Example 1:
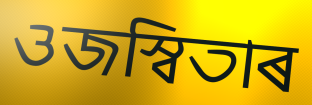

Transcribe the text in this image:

ওজস্বিতাৰ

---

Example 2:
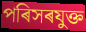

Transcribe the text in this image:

পৰিসৰযুক্ত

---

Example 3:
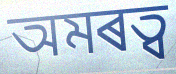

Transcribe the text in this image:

অমৰত্ব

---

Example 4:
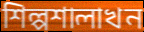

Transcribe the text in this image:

শিল্পশালাখন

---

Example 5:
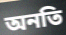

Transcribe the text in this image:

অনতি